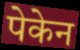
पेकेन